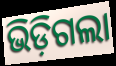
ଭିଡ଼ିଗଲା